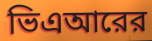
ভিএআরের